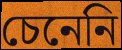
চেনেনি